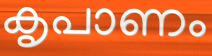
കൃപാണം